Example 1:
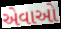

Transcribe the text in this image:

એવાઓ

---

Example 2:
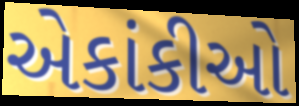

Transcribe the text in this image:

એકાંકીઓ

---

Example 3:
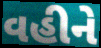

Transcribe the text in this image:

વહીને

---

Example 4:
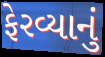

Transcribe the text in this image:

ફેરવ્યાનું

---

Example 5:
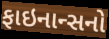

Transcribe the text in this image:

ફાઇનાન્સનો